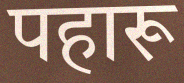
पहारू